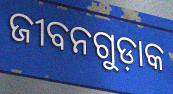
ଜୀବନଗୁଡ଼ାକ